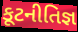
કૂટનીતિજ્ઞ